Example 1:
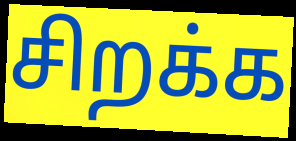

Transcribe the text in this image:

சிறக்க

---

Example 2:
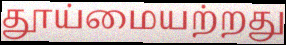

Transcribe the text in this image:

தூய்மையற்றது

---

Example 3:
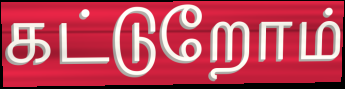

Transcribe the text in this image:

கட்டுறோம்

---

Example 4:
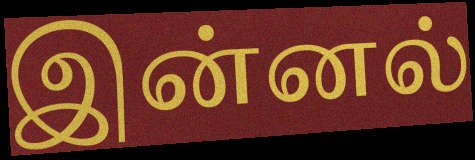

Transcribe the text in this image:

இன்னல்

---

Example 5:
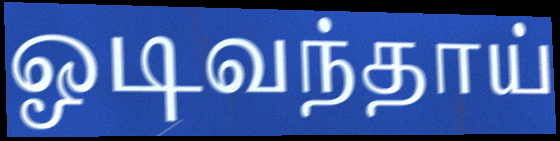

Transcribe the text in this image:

ஓடிவந்தாய்